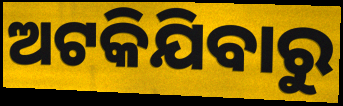
ଅଟକିଯିବାରୁ